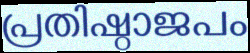
പ്രതിഷ്ഠാജപം